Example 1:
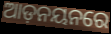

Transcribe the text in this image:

ଆଡ଼ନୟନରେ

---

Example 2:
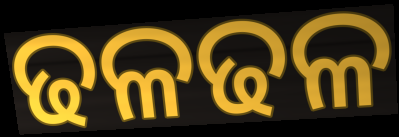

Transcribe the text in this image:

ଢଳଢଳ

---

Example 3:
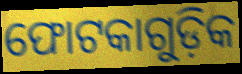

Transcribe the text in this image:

ଫୋଟକାଗୁଡ଼ିକ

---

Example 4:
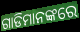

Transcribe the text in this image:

ଗାଡିମାନଙ୍କରେ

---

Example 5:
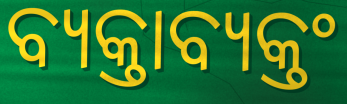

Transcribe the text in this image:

ବ୍ୟକ୍ତାବ୍ୟକ୍ତଂ